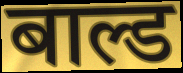
बाल्ड